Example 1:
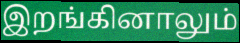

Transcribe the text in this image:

இறங்கினாலும்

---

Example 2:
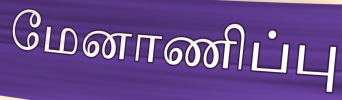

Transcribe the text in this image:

மேனாணிப்பு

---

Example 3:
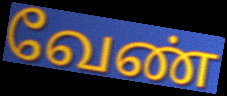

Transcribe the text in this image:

வேண்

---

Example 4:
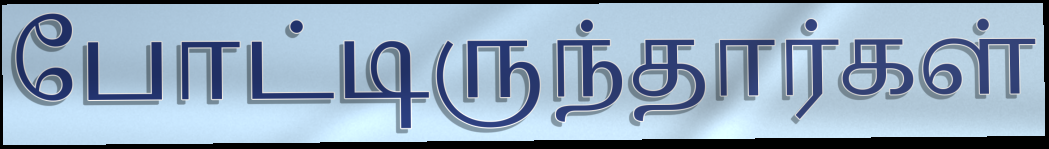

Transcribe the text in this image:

போட்டிருந்தார்கள்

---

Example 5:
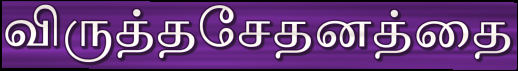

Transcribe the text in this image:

விருத்தசேதனத்தை